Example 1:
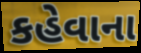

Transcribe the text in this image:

કહેવાના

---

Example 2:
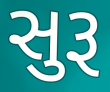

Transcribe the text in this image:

સુરૂ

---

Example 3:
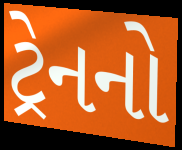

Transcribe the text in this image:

ટ્રેનનો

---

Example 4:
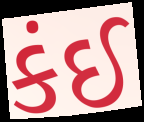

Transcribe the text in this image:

કંઈ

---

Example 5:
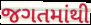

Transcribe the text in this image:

જગતમાંથી